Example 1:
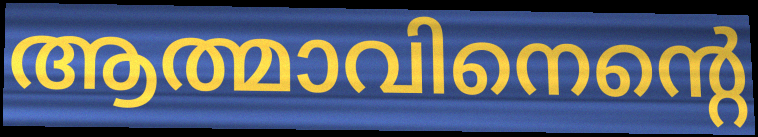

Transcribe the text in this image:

ആത്മാവിനെന്റെ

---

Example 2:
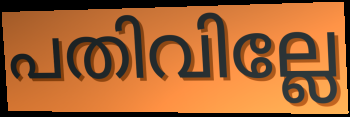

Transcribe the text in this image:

പതിവില്ലേ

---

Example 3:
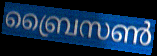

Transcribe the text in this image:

ബ്രൈസൺ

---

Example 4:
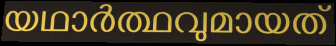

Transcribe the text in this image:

യഥാർത്ഥവുമായത്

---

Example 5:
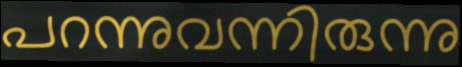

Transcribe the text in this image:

പറന്നുവന്നിരുന്നു